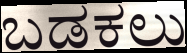
ಬಡಕಲು